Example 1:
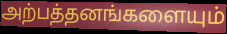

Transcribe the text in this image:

அற்பத்தனங்களையும்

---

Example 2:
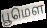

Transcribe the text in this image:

பூமௌ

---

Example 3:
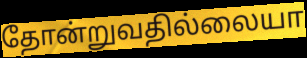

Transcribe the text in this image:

தோன்றுவதில்லையா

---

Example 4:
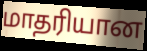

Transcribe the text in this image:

மாதரியான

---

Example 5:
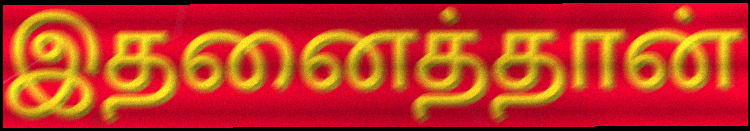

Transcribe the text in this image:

இதனைத்தான்